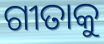
ଗୀତାକୁ